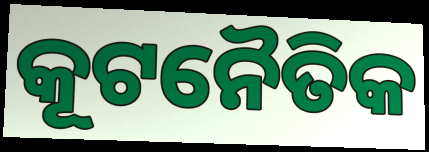
କୂଟନୈତିକ